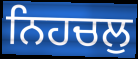
ਨਿਹਚਲੁ